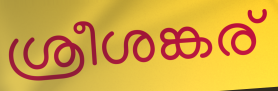
ശ്രീശങ്കര്